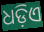
ଧଡ଼ିଏ